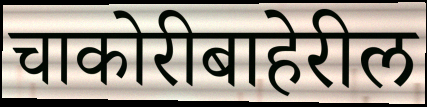
चाकोरीबाहेरील